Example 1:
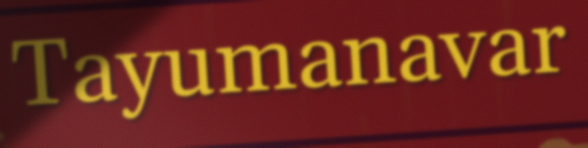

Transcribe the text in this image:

Tayumanavar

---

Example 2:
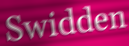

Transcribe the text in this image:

Swidden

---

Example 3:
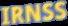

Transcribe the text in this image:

IRNSS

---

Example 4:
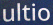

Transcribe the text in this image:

ultio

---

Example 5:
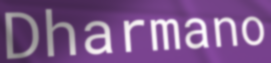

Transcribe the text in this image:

Dharmano